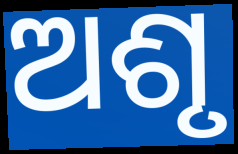
ଅଶୃ